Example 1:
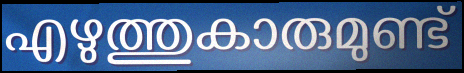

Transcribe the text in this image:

എഴുത്തുകാരുമുണ്ട്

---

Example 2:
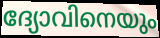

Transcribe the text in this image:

ദ്യോവിനെയും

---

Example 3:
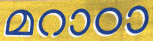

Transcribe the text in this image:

മറാഠാ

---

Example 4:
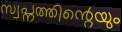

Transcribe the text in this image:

സ്വപ്നത്തിന്റെയും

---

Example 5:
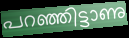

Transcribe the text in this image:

പറഞ്ഞിട്ടാണു